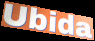
Ubida